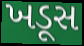
ખડૂસ